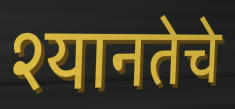
श्यानतेचे